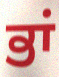
ਭਾਂ